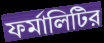
ফর্মালিটির